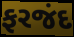
ફરજંદ